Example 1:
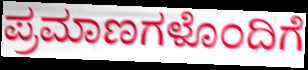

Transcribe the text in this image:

ಪ್ರಮಾಣಗಳೊಂದಿಗೆ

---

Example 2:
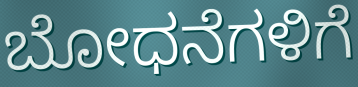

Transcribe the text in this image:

ಬೋಧನೆಗಳಿಗೆ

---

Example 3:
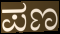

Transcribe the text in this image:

ಪಣ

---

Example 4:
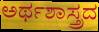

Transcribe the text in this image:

ಅರ್ಥಶಾಸ್ತ್ರದ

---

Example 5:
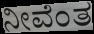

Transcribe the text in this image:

ನೀವೆಂತ